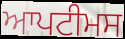
ਆਪਟੀਮਸ